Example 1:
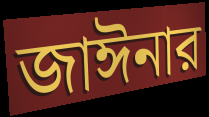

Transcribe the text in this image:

জাঈনার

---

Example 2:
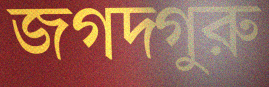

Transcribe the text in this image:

জগদ্গুরু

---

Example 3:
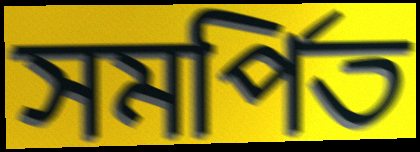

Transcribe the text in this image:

সমর্পিত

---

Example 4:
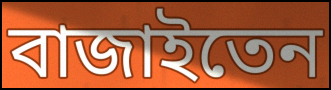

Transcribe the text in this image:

বাজাইতেন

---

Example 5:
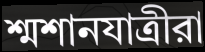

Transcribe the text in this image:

শ্মশানযাত্রীরা